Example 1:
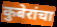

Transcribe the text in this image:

कुबेरांचा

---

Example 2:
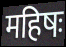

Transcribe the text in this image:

महिषः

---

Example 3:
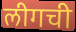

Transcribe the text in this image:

लीगची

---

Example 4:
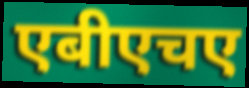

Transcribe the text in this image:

एबीएचए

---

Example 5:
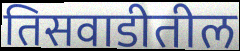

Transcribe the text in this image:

तिसवाडीतील